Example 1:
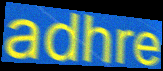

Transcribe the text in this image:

adhre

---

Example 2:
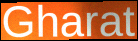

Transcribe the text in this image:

Gharat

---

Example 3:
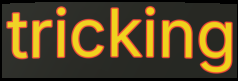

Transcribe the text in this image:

tricking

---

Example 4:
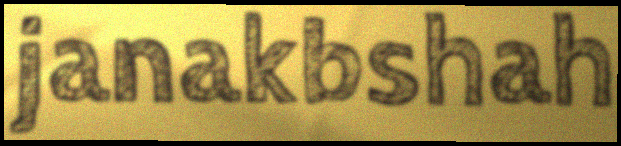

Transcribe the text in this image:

janakbshah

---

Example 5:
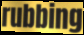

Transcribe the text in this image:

rubbing